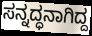
ಸನ್ನದ್ಧನಾಗಿದ್ದ